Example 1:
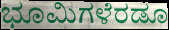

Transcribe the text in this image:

ಭೂಮಿಗಳೆರಡೂ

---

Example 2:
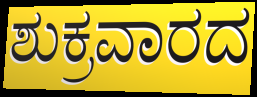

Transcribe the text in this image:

ಶುಕ್ರವಾರದ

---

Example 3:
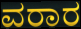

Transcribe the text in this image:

ವರಾರ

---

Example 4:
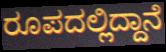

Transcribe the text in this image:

ರೂಪದಲ್ಲಿದ್ದಾನೆ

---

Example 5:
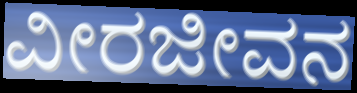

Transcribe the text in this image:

ವೀರಜೀವನ